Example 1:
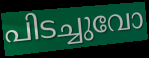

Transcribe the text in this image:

പിടച്ചുവോ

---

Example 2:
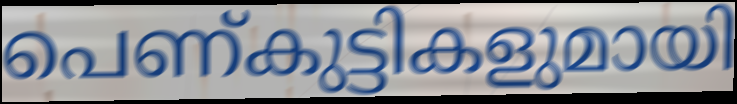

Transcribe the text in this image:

പെണ്കുട്ടികളുമായി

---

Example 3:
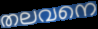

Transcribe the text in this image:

തലവനെ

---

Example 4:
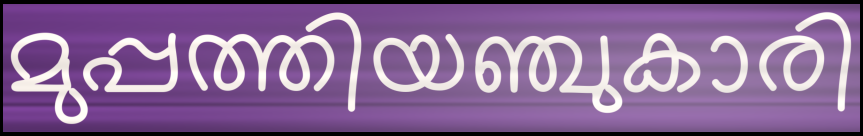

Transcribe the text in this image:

മുപ്പത്തിയഞ്ചുകാരി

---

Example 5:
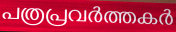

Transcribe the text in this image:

പത്രപ്രവർത്തകർ